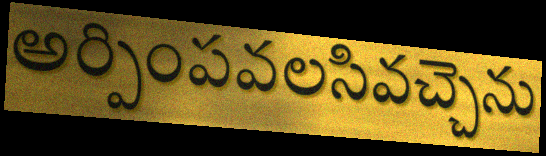
అర్పింపవలసివచ్చెను